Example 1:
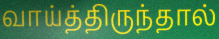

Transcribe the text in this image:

வாய்த்திருந்தால்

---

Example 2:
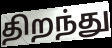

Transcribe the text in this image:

திறந்து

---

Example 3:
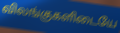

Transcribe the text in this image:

விலங்குகளிடையே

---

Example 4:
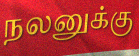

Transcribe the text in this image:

நலனுக்கு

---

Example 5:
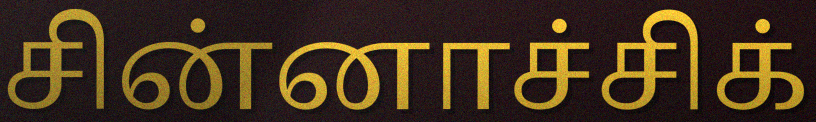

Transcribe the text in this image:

சின்னாச்சிக்